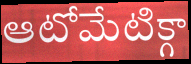
ఆటోమేటిక్గా